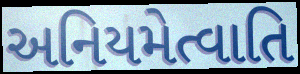
અનિયમેત્વાતિ